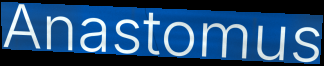
Anastomus